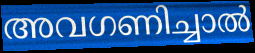
അവഗണിച്ചാൽ